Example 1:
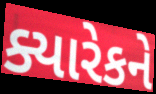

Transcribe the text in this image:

ક્યારેકને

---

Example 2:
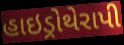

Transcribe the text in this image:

હાઇડ્રોથેરાપી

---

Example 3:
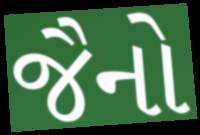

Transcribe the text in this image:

જૈનો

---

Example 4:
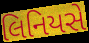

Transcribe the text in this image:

લિનિયસે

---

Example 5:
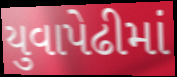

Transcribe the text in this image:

યુવાપેઢીમાં